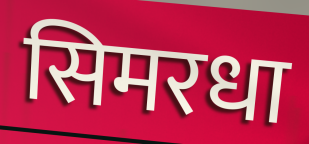
सिमरधा